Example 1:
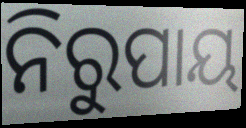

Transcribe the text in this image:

ନିରୁପାୟ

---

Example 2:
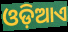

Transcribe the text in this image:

ଓଡ଼ିଆଏ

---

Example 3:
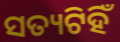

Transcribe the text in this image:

ସତ୍ୟଟିହିଁ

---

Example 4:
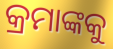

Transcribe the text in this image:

କ୍ରମାଙ୍କକୁ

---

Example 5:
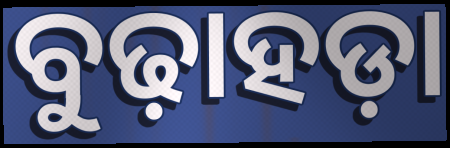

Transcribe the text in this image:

ବୁଢ଼ାହଡ଼ା